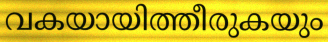
വകയായിത്തീരുകയും